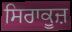
ਸਿਰਾਕੂਜ਼